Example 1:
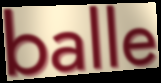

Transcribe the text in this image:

balle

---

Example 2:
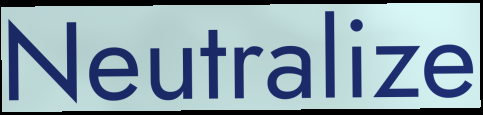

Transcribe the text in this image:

Neutralize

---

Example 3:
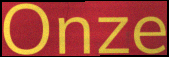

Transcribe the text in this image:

Onze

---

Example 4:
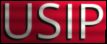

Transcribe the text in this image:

USIP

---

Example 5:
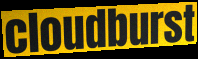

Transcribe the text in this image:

cloudburst